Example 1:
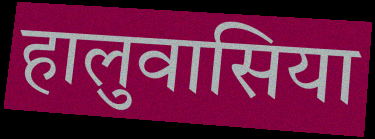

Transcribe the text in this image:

हालुवासिया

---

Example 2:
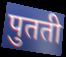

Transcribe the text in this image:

पुतती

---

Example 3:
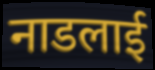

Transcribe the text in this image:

नाडलाई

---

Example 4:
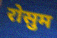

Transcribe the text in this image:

रोसुम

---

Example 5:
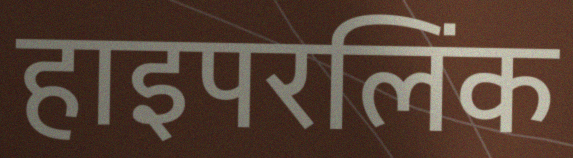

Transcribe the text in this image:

हाइपरलिंक